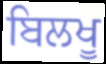
ਬਿਲਖੂ